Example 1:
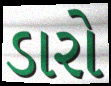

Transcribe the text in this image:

ડારો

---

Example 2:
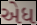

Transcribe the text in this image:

એધ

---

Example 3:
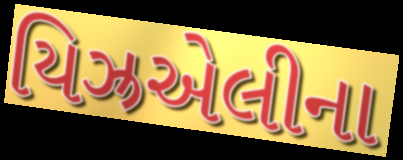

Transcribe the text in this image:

યિઝ્રએલીના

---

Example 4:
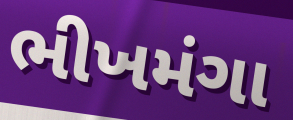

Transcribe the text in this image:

ભીખમંગા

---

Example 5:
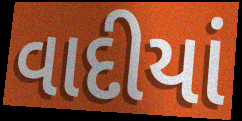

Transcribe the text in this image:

વાદીયાં